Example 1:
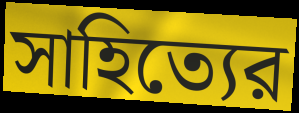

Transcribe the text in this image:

সাহিত্যের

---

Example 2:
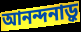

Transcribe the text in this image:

আনন্দনাড়ু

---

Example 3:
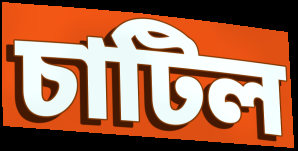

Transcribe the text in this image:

চাটিল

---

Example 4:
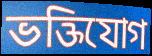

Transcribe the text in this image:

ভক্তিযোগ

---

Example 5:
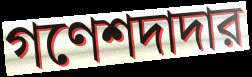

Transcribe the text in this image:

গণেশদাদার